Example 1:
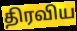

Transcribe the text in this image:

திரவிய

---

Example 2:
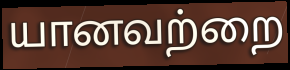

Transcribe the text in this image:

யானவற்றை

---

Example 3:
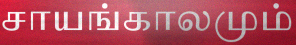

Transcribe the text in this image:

சாயங்காலமும்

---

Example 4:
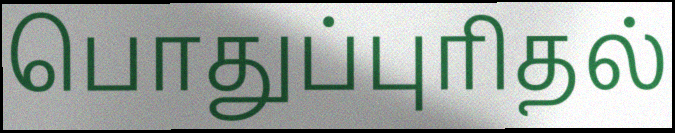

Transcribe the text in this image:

பொதுப்புரிதல்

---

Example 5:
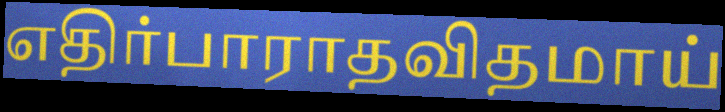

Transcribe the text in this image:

எதிர்பாராதவிதமாய்